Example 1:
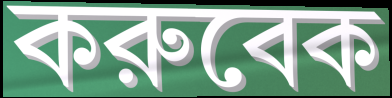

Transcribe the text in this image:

করুবেক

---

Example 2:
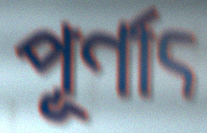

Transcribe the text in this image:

পূর্ণাৎ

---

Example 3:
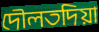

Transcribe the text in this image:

দৌলতদিয়া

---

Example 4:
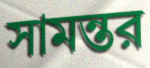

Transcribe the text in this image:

সামন্তর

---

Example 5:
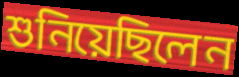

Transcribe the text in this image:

শুনিয়েছিলেন